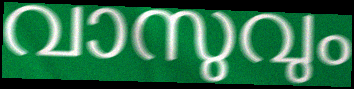
വാസുവും